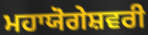
ਮਹਾਯੋਗੇਸ਼ਵਰੀ